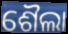
ଶୈଲା